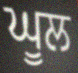
ਘੂਲ